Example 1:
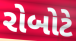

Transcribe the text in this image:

રોબોટે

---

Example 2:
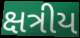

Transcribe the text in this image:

ક્ષત્રીય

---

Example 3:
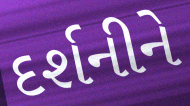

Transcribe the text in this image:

દર્શનીને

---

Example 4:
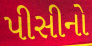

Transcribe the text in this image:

પીસીનો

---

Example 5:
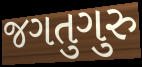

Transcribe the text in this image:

જગતુગુરુ